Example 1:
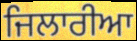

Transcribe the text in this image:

ਜਿਲਾਰੀਆ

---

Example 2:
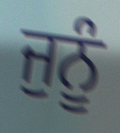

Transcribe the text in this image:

ਜੁਨੂੰ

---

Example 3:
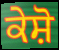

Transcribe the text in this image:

ਕੇਸ਼ੋ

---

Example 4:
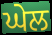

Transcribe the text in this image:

ਘੇਲ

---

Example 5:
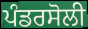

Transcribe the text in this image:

ਪੰਡਰਸੋਲੀ